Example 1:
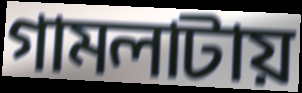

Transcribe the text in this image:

গামলাটায়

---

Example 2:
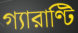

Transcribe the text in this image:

গ্যারাণ্টি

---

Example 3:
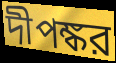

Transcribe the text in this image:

দীপঙ্কর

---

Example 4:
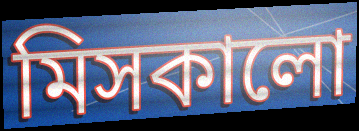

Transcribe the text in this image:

মিসকালো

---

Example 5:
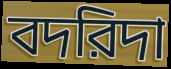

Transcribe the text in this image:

বদরিদা